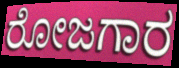
ರೋಜಗಾರ